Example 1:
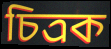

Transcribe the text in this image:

চিত্ৰক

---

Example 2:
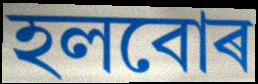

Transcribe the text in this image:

হলবোৰ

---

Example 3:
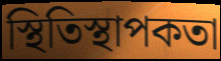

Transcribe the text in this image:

স্থিতিস্থাপকতা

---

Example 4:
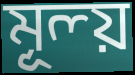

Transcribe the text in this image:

মূল্য়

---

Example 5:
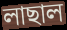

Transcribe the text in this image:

লাছাল